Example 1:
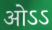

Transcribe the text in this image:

ओऽऽ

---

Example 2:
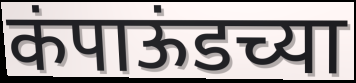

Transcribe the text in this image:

कंपाऊंडच्या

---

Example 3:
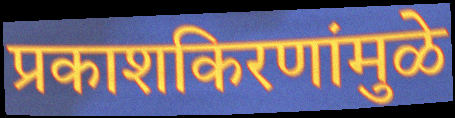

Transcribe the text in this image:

प्रकाशकिरणांमुळे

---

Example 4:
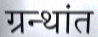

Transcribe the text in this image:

ग्रन्थांत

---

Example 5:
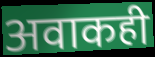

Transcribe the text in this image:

अवाकही